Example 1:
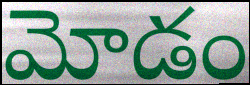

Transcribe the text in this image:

మోడం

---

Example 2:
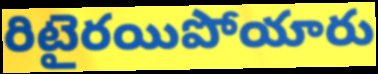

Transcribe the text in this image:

రిటైరయిపోయారు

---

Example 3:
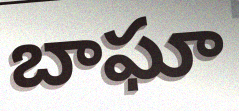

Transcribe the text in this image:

బాఘా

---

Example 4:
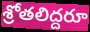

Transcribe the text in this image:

శ్రోతలిద్దరూ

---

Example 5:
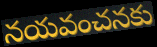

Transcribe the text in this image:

నయవంచనకు